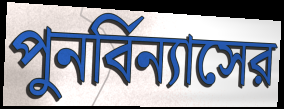
পুনর্বিন্যাসের